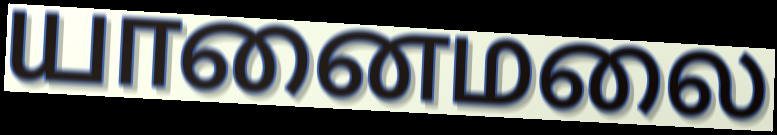
யானைமலை